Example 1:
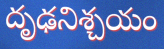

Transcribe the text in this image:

దృఢనిశ్చయం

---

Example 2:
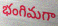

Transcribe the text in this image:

భంగిమగా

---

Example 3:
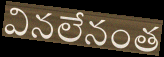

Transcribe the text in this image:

వినలేనంత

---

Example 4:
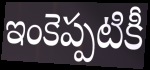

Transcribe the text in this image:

ఇంకెప్పటికీ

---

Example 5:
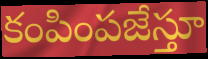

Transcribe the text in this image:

కంపింపజేస్తూ